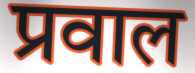
प्रवाल